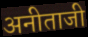
अनीताजी